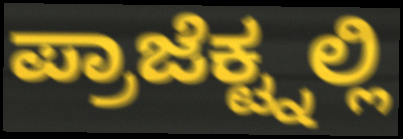
ಪ್ರಾಜೆಕ್ಟ್ನಲ್ಲಿ